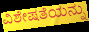
ವಿಶೇಷತೆಯನ್ನು